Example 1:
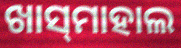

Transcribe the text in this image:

ଖାସ୍‌ମାହାଲ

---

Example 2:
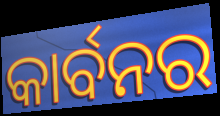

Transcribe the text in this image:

କାର୍ବନର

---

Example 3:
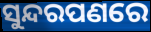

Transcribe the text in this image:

ସୁନ୍ଦରପଣରେ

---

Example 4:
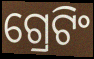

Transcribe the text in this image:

ଗ୍ରେଟିଂ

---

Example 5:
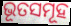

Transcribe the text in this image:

ଭୂତସମୂହ